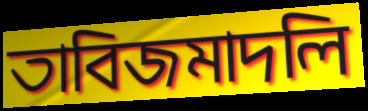
তাবিজমাদলি